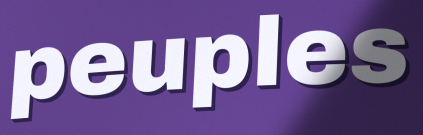
peuples